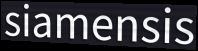
siamensis